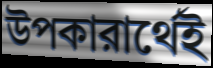
উপকারার্থেই